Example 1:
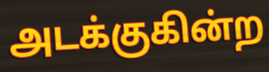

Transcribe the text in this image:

அடக்குகின்ற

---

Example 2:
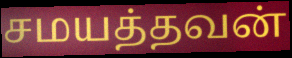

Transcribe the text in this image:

சமயத்தவன்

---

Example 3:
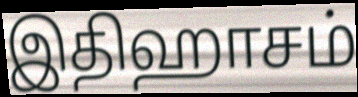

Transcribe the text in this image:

இதிஹாசம்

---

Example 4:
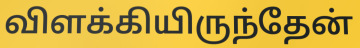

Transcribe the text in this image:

விளக்கியிருந்தேன்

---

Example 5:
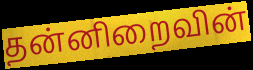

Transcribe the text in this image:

தன்னிறைவின்